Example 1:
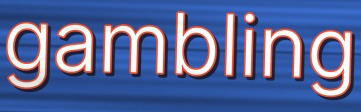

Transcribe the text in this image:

gambling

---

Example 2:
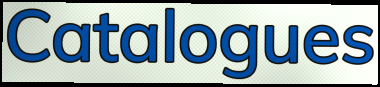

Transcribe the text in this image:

Catalogues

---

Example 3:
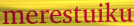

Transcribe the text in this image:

merestuiku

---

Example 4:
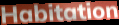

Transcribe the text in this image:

Habitation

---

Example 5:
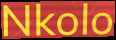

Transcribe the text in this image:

Nkolo